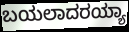
ಬಯಲಾದರಯ್ಯಾ